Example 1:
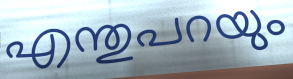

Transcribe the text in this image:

എന്തുപറയും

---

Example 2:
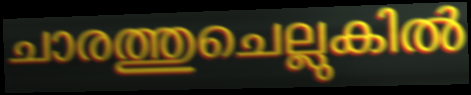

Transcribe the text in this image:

ചാരത്തുചെല്ലുകിൽ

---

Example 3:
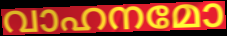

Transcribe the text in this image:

വാഹനമോ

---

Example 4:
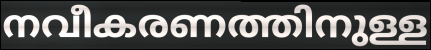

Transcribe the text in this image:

നവീകരണത്തിനുള്ള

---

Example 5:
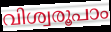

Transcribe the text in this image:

വിശ്വരൂപാം